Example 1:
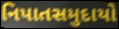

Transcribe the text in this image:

નિપાતસમુદાયો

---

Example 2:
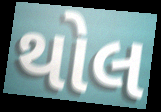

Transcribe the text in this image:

થોલ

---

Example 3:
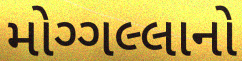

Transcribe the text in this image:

મોગ્ગલ્લાનો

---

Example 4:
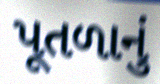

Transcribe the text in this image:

પૂતળાનું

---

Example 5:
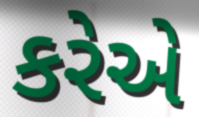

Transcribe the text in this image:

કરેએ